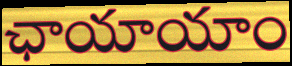
ఛాయాయాం